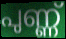
പുണ്ണ്